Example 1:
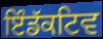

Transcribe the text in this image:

ਇੰਡੱਕਟਿਵ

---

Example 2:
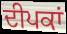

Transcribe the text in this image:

ਦੀਪਕਾਂ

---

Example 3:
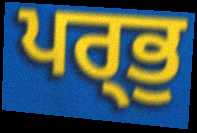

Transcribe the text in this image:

ਪਰ੍ਭੁ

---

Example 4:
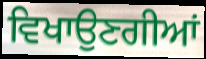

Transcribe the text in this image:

ਵਿਖਾਉਣਗੀਆਂ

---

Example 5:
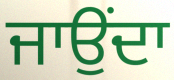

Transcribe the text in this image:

ਜਾਉਂਦਾ